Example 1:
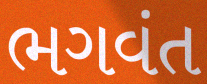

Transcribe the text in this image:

ભગવંત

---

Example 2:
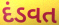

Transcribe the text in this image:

દંડવત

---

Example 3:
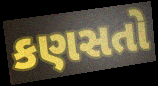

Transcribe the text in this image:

કણસતો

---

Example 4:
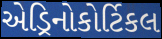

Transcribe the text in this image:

એડ્રિનોકોર્ટિકલ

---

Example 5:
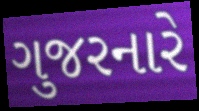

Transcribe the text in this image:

ગુજરનારે